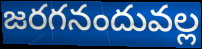
జరగనందువల్ల